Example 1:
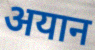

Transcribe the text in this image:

अयान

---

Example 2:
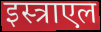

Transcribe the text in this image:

इस्त्राएल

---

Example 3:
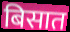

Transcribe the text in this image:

बिसात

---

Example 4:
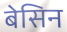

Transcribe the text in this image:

बेसिन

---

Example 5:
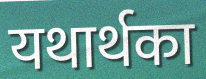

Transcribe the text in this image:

यथार्थका